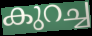
കുറച്ച